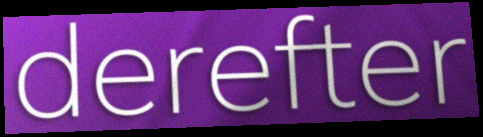
derefter